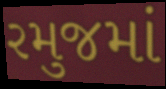
રમુજમાં